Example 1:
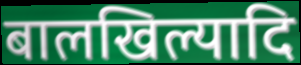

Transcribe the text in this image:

बालखिल्यादि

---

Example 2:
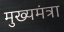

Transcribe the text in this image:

मुख्यमंत्रा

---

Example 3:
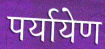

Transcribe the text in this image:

पर्यायेण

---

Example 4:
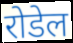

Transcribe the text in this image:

रोडेल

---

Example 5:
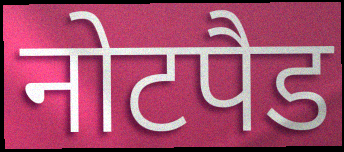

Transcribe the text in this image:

नोटपैड